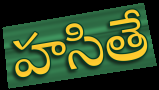
హసితే